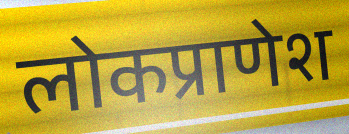
लोकप्राणेश